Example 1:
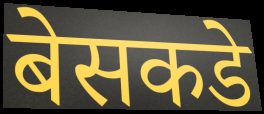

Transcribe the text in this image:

बेसकडे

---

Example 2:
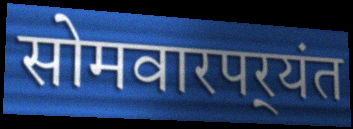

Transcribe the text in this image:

सोमवारपर्यंत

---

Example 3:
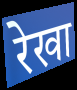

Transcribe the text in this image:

रेखा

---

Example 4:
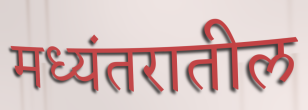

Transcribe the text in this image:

मध्यंतरातील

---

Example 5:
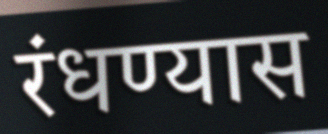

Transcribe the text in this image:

रंधण्यास